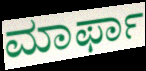
ಮಾರ್ಫಾ